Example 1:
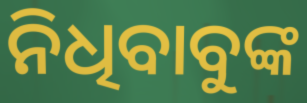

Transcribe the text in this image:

ନିଧିବାବୁଙ୍କ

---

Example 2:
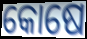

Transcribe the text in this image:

କୋଷେ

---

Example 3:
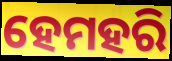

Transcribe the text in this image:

ହେମହରି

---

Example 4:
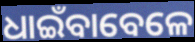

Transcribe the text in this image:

ଧାଇଁବାବେଳେ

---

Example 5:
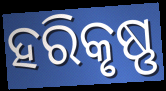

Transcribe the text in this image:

ହରିକୃଷ୍ଣ